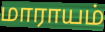
மாராயம்